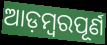
ଆଡ଼ମ୍ବରପୂର୍ଣ